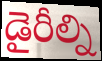
డైరీల్ని